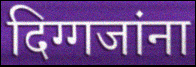
दिग्गजांना